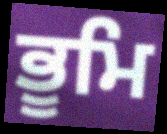
ਭੂਮਿ